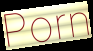
Porn